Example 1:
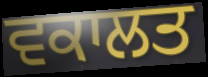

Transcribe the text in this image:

ਵਕਾਲਤ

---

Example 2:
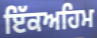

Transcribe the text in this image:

ਇੱਕਅਹਿਮ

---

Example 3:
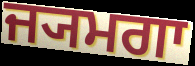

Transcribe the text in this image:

ਜ੍ਯਮਗਾ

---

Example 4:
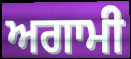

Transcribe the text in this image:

ਅਗਾਮੀ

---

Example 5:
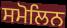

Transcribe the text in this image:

ਸਮੋਲਿਨ